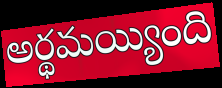
అర్థమయ్యింది